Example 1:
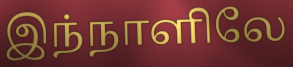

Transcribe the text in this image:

இந்நாளிலே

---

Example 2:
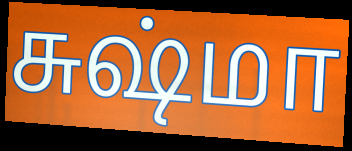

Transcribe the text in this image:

சுஷ்மா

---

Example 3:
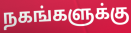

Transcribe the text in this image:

நகங்களுக்கு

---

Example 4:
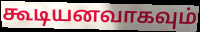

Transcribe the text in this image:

கூடியனவாகவும்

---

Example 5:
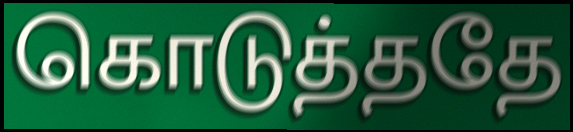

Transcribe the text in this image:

கொடுத்ததே